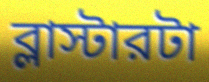
ব্লাস্টারটা